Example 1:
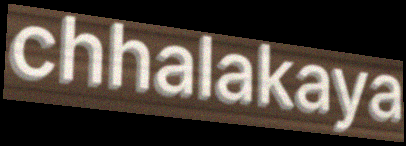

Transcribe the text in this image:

chhalakaya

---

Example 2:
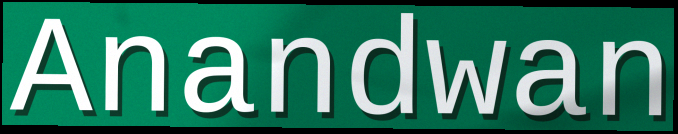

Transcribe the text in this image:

Anandwan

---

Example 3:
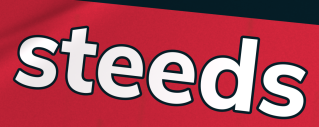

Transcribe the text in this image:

steeds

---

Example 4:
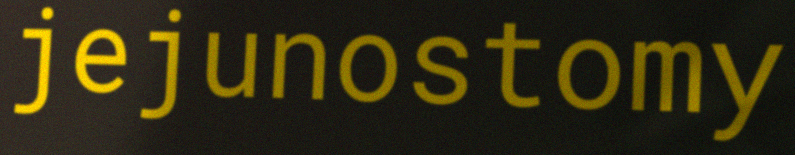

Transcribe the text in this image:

jejunostomy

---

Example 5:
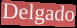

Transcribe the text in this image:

Delgado